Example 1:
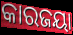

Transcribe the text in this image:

କାରଜୟା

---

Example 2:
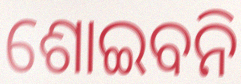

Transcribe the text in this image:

ଶୋଇବନି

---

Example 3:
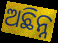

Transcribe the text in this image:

ଅଛିନ୍ନ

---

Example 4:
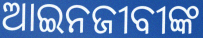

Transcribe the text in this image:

ଆଇନଜୀବୀଙ୍କ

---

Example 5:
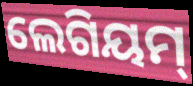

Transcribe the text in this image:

ଲେଗିୟମ୍